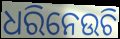
ଧରିନେଉଚି